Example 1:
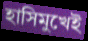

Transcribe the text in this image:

হাসিমুখেই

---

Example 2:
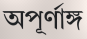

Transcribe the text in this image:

অপূর্ণাঙ্গ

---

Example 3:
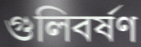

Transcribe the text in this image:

গুলিবর্ষণ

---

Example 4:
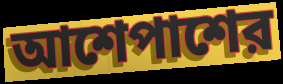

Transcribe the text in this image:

আশেপাশের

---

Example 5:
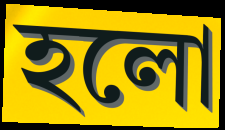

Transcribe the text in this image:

হলো